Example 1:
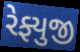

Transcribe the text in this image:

રેફ્યુજી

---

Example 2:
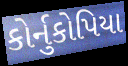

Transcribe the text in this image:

કોર્નુકોપિયા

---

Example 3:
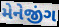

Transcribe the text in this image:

મેનેજીંગ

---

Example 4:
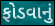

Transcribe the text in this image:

ફોડવાનું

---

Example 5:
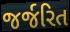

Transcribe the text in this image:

જર્જરિત